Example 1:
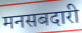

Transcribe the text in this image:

मनसबदारी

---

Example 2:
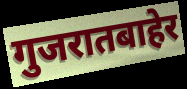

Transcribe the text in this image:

गुजरातबाहेर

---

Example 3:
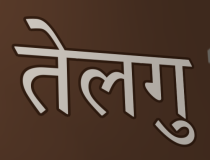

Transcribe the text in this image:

तेलगु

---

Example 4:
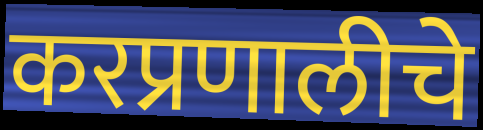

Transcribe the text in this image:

करप्रणालीचे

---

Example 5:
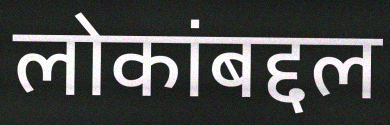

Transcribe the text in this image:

लोकांबद्दल